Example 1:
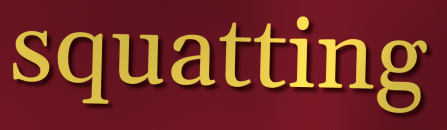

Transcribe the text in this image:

squatting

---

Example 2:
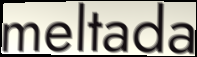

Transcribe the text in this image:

meltada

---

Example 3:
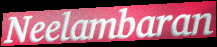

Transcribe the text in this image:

Neelambaran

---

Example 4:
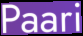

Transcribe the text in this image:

Paari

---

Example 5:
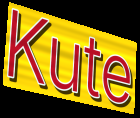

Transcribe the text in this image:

Kute